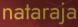
nataraja